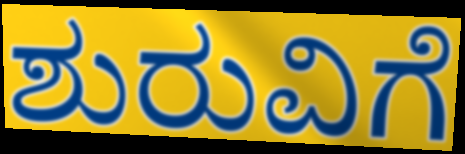
ಶುರುವಿಗೆ